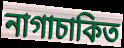
নাগাচাকিত